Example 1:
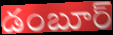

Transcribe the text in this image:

డంబూర్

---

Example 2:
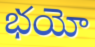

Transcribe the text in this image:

భయో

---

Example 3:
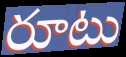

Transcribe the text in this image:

రూటు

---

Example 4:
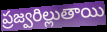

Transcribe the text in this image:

ప్రజ్వరిల్లుతాయి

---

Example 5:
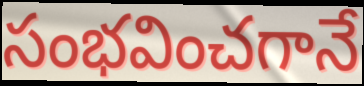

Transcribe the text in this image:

సంభవించగానే